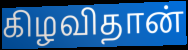
கிழவிதான்